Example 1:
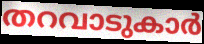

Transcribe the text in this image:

തറവാടുകാർ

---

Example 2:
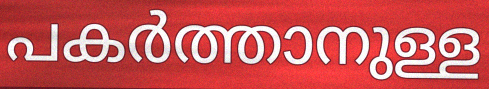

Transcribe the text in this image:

പകർത്താനുള്ള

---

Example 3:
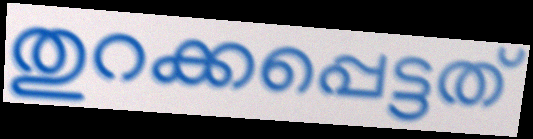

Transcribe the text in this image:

തുറക്കപ്പെട്ടത്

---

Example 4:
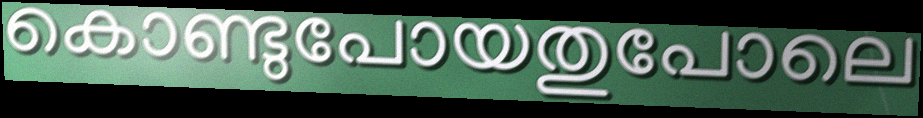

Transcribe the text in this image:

കൊണ്ടുപോയതുപോലെ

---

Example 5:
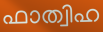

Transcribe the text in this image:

ഫാത്വിഹ